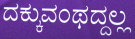
ದಕ್ಕುವಂಥದ್ದಲ್ಲ